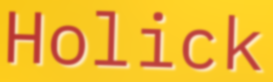
Holick